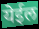
येईल